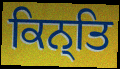
ਕਿਨ੍ਤਿ